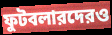
ফুটবলারদেরও